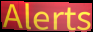
Alerts